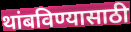
थांबविण्यासाठी